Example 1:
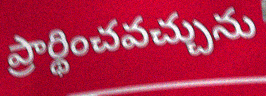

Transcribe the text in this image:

ప్రార్థించవచ్చును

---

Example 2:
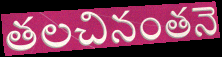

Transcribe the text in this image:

తలచినంతనె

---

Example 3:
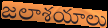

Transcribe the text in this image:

జలాశయాలు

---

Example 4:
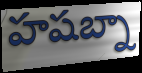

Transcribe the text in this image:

హషబ్నా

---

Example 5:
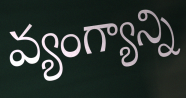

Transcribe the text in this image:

వ్యంగ్యాన్ని